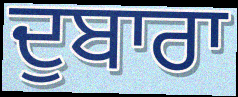
ਦੁਬਾਰਾ